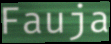
Fauja